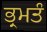
ਭ੍ਰਮਤੰ